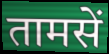
तामसें